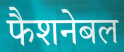
फैशनेबल